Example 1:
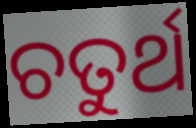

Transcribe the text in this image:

ଚତୁର୍ଥ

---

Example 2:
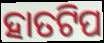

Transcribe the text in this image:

ହାତଟିପ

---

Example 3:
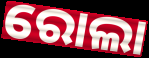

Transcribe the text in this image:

ରୋଲା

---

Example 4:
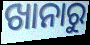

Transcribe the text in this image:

ଖାନାରୁ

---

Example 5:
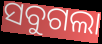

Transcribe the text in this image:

ସବୁଗଲା